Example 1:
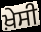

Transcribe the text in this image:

ਖ਼ੇਸੀ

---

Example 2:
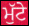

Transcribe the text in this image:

ਮੁੱਟੇ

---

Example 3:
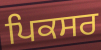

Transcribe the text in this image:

ਪਿਕਸਰ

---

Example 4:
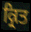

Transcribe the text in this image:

ਕ੍ਰਿਤ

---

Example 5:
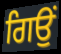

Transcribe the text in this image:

ਗਿਉਂ